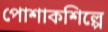
পোশাকশিল্পে